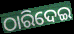
ଠାରିଦେଇ